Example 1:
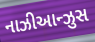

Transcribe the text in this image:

નાઝીઆન્ઝુસ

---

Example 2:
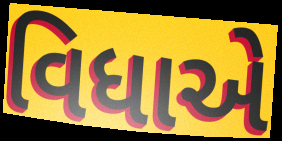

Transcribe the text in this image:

વિધાએ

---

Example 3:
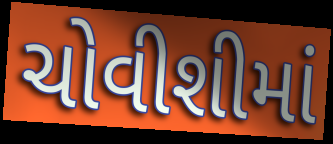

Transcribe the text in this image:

ચોવીશીમાં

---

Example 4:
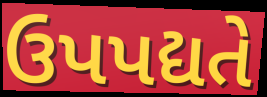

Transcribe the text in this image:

ઉપપદ્યતે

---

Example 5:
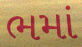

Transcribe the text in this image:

ભમાં